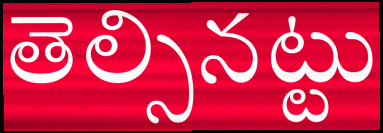
తెల్సినట్టు